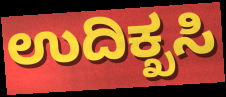
ಉದಿಕ್ಖಸಿ